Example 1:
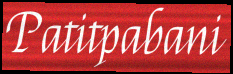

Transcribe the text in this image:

Patitpabani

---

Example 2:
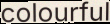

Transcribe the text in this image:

colourful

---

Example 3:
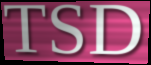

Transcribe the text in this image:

TSD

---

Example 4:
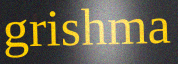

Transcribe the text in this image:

grishma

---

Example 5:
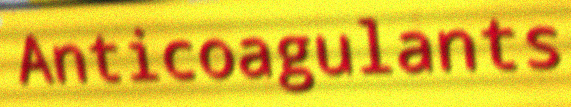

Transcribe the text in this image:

Anticoagulants